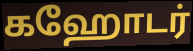
கஹோடர்